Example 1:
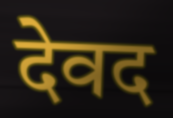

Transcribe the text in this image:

देवद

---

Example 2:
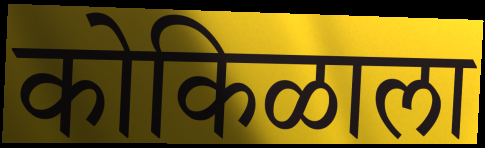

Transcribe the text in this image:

कोकिळाला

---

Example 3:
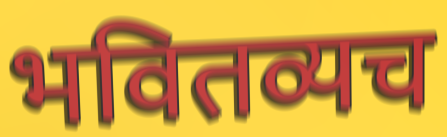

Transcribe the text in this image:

भवितव्यच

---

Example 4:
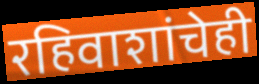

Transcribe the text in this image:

रहिवाशांचेही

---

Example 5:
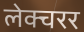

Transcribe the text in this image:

लेक्चरर